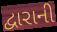
દ્વારાની